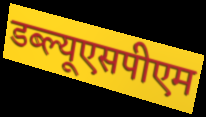
डब्ल्यूएसपीएम